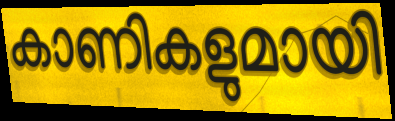
കാണികളുമായി